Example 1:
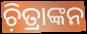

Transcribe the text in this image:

ଚ଼ିତ୍ରାଙ୍କନ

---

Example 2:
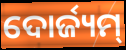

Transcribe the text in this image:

ଦୋର୍ଜ୍ୟମ୍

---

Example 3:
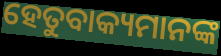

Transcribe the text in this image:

ହେତୁବାକ୍ୟମାନଙ୍କ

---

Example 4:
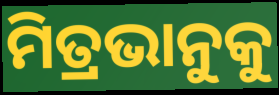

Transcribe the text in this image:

ମିତ୍ରଭାନୁକୁ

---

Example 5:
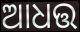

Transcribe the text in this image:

ଆଧତ୍ତ